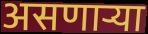
असणार्‍या